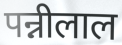
पन्नीलाल